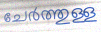
ചേർത്തുള്ള